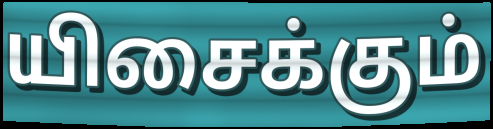
யிசைக்கும்